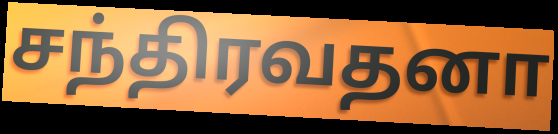
சந்திரவதனா